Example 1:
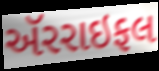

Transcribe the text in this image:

ઍરરાઇફલ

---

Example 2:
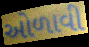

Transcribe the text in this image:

ઓળાવી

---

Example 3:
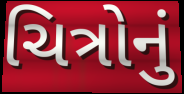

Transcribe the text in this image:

ચિત્રોનું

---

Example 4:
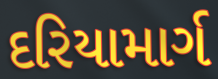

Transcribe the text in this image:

દરિયામાર્ગ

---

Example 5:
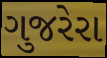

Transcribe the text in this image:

ગુજરેરા